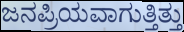
ಜನಪ್ರಿಯವಾಗುತ್ತಿತ್ತು